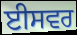
ਈਸਵਰ